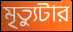
মৃত্যুটার